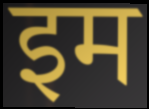
इम